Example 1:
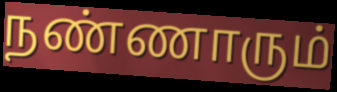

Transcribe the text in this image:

நண்ணாரும்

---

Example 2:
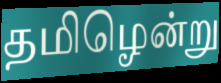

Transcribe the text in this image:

தமிழென்று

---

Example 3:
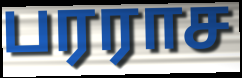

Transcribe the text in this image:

பரராச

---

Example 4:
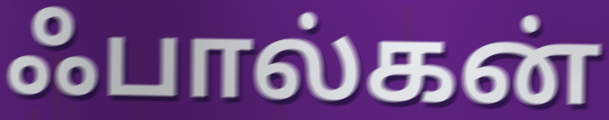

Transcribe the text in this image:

ஃபால்கன்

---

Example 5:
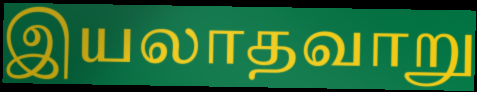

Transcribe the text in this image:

இயலாதவாறு